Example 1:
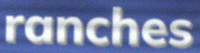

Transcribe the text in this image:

ranches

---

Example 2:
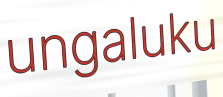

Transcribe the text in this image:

ungaluku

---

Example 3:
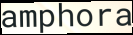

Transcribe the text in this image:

amphora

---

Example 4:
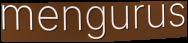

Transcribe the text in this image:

mengurus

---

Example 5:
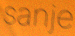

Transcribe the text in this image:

sanje